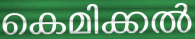
കെമിക്കൽ